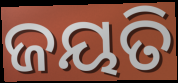
ଜୟତି